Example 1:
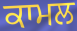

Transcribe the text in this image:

ਕਾਮਲ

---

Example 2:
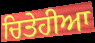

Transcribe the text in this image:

ਚਿਤੇਹੀਆ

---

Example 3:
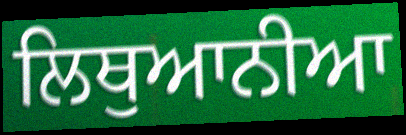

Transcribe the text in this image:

ਲਿਥੁਆਨੀਆ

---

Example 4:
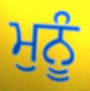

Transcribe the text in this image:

ਮੁਨੂੰ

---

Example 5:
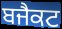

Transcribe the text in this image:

ਬਜੈਕਟ